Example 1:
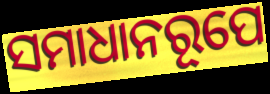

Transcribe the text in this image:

ସମାଧାନରୂପେ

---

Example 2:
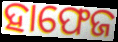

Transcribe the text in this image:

ହାଫେଜ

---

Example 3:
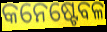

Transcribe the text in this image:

କନେଷ୍ଟେବଳ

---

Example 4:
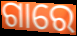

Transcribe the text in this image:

ଗାରେ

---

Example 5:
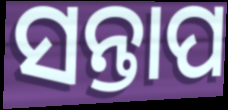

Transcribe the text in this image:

ସନ୍ତାପ